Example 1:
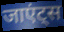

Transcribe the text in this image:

जाएंट्स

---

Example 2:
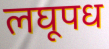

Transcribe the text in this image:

लघूपध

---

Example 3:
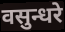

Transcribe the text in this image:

वसुन्धरे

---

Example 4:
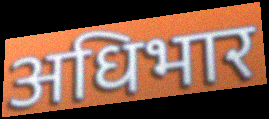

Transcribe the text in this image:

अधिभार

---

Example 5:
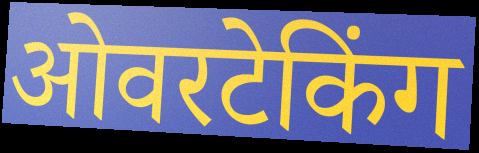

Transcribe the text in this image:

ओवरटेकिंग